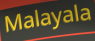
Malayala